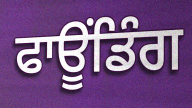
ਫਾਊਂਡਿੰਗ